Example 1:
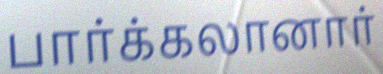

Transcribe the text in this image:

பார்க்கலானார்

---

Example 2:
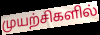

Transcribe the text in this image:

முயற்சிகளில்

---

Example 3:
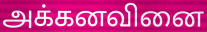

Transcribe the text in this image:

அக்கனவினை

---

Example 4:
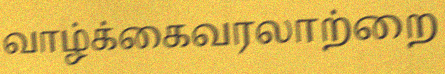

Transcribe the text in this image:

வாழ்க்கைவரலாற்றை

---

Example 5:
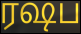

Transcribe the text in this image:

ரஷப